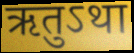
ऋतुऽथा